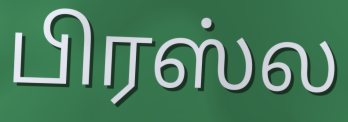
பிரஸ்ல